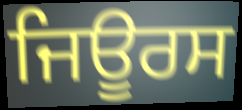
ਜਿਊਰਸ